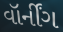
વૉર્નીંગ